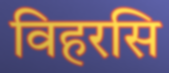
विहरसि